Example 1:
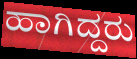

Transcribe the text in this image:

ಹಾಗಿದ್ದರು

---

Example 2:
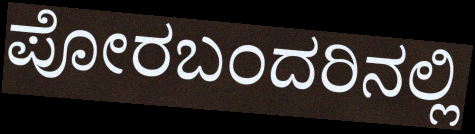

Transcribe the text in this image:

ಪೋರಬಂದರಿನಲ್ಲಿ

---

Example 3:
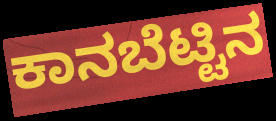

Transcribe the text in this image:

ಕಾನಬೆಟ್ಟಿನ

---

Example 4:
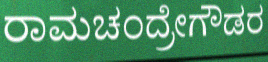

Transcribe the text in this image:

ರಾಮಚಂದ್ರೇಗೌಡರ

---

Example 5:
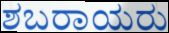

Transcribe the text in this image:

ಶಬರಾಯರು